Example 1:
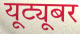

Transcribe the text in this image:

यूट्यूबर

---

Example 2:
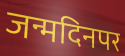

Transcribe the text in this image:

जन्मदिनपर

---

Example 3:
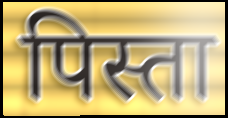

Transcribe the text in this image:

पिस्ता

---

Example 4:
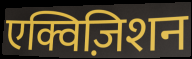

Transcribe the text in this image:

एक्विज़िशन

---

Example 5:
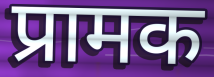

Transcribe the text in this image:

प्रामक